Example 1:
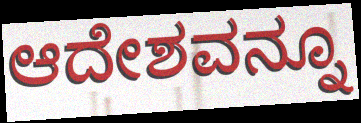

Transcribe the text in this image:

ಆದೇಶವನ್ನೂ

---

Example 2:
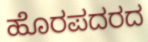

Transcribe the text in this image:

ಹೊರಪದರದ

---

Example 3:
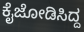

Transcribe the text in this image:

ಕೈಜೋಡಿಸಿದ್ದ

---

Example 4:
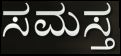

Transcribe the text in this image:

ಸಮಸ್ತ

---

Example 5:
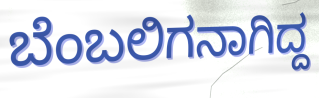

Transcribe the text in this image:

ಬೆಂಬಲಿಗನಾಗಿದ್ದ